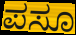
ಪಸೂ